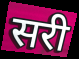
सरी